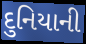
દુનિયાની